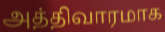
அத்திவாரமாக